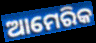
ଆମେରିକ